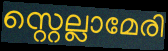
സ്റ്റെല്ലാമേരി